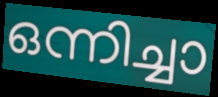
ഒന്നിച്ചാ